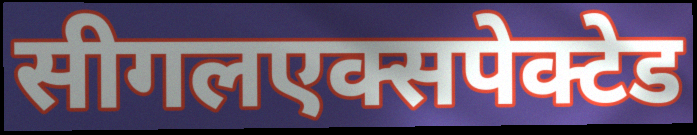
सीगलएक्सपेक्टेड